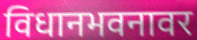
विधानभवनावर